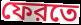
ফেরতে